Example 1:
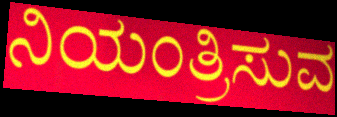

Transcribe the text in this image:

ನಿಯಂತ್ರಿಸುವ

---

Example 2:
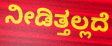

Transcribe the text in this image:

ನೀಡಿತ್ತಲ್ಲದೆ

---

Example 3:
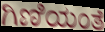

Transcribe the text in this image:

ಗಿಣಿಯಂತೆ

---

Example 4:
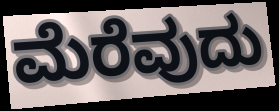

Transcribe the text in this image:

ಮೆರೆವುದು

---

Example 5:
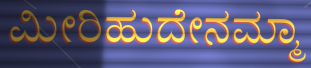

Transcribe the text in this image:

ಮೀರಿಹುದೇನಮ್ಮಾ